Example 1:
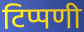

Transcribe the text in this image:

टिप्पणी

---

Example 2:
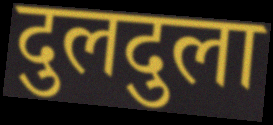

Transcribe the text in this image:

दुलदुला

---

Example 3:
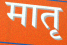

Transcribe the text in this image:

मातृ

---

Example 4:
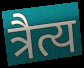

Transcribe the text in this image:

त्रैत्य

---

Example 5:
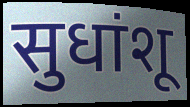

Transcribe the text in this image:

सुधांशू